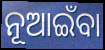
ନୂଆଇଁବା